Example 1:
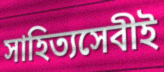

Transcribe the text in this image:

সাহিত্যসেবীই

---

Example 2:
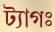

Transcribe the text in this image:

ট্যাগঃ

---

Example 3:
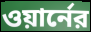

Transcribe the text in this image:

ওয়ার্নের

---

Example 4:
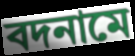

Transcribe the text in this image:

বদনামে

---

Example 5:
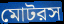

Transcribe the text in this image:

মোটরস